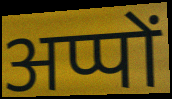
अप्पों